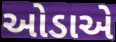
ઓડાએ